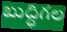
బుద్ధిగల